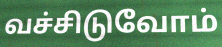
வச்சிடுவோம்